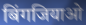
बिंगजियाओ